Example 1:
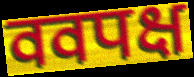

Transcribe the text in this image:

ववपक्ष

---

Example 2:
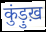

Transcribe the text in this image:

कुंड़ुख़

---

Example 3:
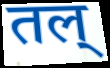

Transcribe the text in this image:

तल्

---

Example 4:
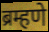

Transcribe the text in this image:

ब्रम्हणे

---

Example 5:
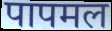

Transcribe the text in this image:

पापमल